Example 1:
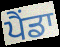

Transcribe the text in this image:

ਪੈਂਡਾ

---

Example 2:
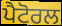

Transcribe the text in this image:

ਪੈਟੋਰਲ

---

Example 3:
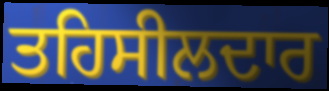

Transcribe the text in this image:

ਤਹਿਸੀਲਦਾਰ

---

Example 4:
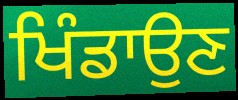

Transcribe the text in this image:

ਖਿੰਡਾਉਣ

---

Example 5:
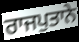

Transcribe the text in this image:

ਰਾਜਪੁਤਾਨੇ